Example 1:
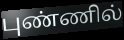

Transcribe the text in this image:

புண்ணில்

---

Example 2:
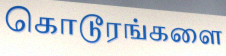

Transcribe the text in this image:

கொடூரங்களை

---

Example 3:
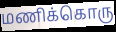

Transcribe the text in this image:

மணிக்கொரு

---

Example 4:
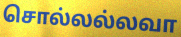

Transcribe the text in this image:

சொல்லல்லவா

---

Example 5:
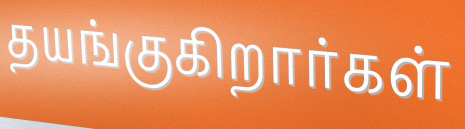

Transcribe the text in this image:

தயங்குகிறார்கள்